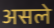
असले